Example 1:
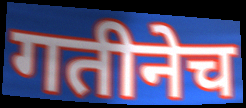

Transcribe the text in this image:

गतीनेच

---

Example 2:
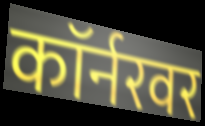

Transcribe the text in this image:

कॉर्नरवर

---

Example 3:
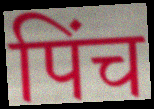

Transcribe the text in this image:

पिंच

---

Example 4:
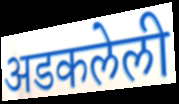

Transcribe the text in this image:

अडकलेली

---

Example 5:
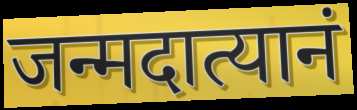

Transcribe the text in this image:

जन्मदात्यानं